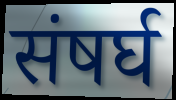
संषर्घ